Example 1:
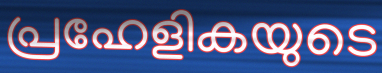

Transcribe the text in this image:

പ്രഹേളികയുടെ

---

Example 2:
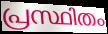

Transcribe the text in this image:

പ്രസ്ഥിതം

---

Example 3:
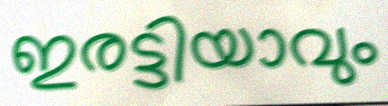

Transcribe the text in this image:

ഇരട്ടിയാവും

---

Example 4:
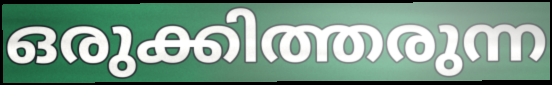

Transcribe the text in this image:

ഒരുക്കിത്തരുന്ന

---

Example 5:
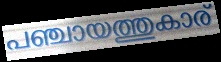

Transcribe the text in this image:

പഞ്ചായത്തുകാര്